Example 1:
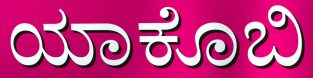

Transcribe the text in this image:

ಯಾಕೊಬಿ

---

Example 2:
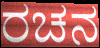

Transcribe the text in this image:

ರಚನ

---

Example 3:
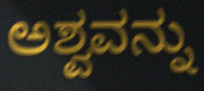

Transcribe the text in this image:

ಅಶ್ವವನ್ನು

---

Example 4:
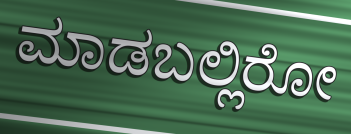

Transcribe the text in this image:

ಮಾಡಬಲ್ಲಿರೋ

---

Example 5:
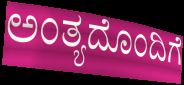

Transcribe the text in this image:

ಅಂತ್ಯದೊಂದಿಗೆ